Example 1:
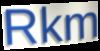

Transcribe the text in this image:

Rkm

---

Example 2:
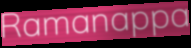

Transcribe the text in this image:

Ramanappa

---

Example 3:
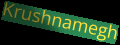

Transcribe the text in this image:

Krushnamegh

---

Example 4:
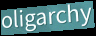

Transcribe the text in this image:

oligarchy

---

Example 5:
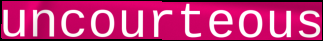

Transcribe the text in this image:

uncourteous